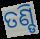
ତଣ୍ଡି